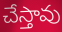
చేస్తావు